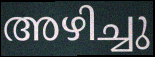
അഴിച്ചു